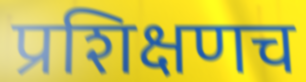
प्रशिक्षणच